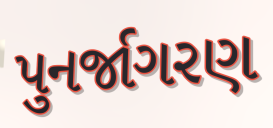
પુનર્જાગરણ